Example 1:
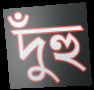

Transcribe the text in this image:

দুঁহু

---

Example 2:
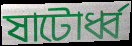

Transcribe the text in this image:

ষাটোর্ধ্ব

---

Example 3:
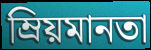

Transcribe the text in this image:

ম্রিয়মানতা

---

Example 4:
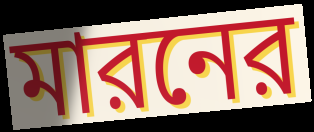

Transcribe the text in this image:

মারনের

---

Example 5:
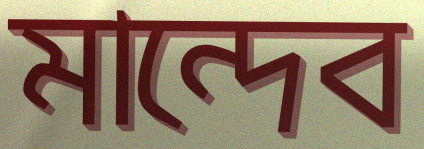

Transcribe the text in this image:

মান্দেব